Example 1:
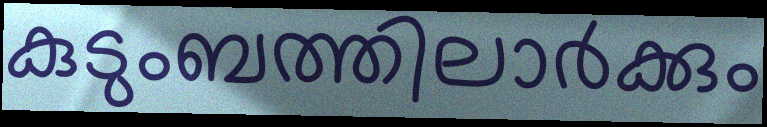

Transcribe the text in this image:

കുടുംബത്തിലാർക്കും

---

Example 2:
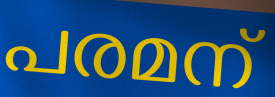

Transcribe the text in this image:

പരമന്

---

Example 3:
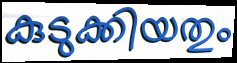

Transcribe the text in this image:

കുടുക്കിയതും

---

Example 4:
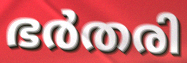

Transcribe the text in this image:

ഭർതരി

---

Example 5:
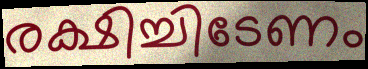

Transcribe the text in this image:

രക്ഷിച്ചിടേണം